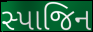
સ્પાજિન